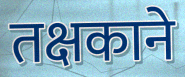
तक्षकाने